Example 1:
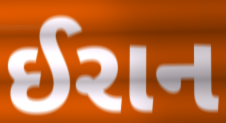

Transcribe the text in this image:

ઈરાન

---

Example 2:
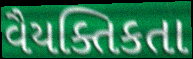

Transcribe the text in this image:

વૈયક્તિકતા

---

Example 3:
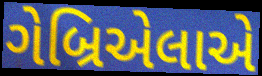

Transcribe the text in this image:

ગેબ્રિએલાએ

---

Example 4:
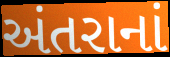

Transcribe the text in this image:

અંતરાનાં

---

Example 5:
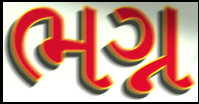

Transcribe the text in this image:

ભગ્ન